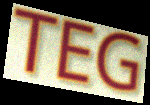
TEG